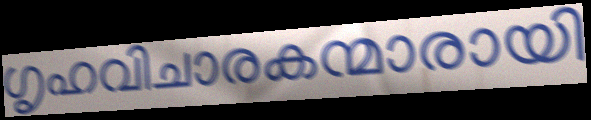
ഗൃഹവിചാരകന്മാരായി